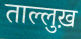
ताल्लुख़